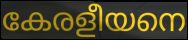
കേരളീയനെ